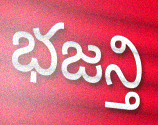
భజన్తి